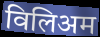
विलिअम